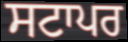
ਸਟਾਪਰ